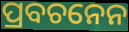
ପ୍ରବଚନେନ